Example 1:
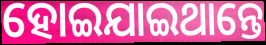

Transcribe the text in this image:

ହୋଇଯାଇଥାନ୍ତେ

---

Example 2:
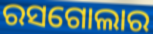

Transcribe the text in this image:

ରସଗୋଲାର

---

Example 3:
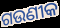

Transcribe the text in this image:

ଗଉଣୀକ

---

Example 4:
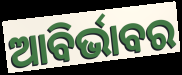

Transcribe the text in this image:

ଆବିର୍ଭାବର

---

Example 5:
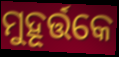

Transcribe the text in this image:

ମୁହୂର୍ତ୍ତକେ